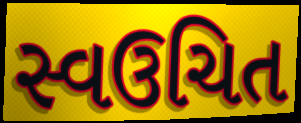
સ્વઉચિત